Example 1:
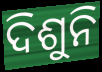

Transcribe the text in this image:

ଦିଶୁନି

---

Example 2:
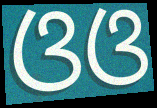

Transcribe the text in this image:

ଓଓ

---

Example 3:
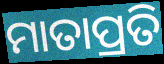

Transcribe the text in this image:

ମାତାପ୍ରତି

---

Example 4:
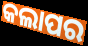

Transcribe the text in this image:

କଲାପର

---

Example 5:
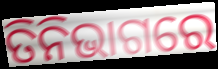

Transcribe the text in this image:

ତିନିଭାଗରେ